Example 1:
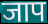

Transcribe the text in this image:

जाप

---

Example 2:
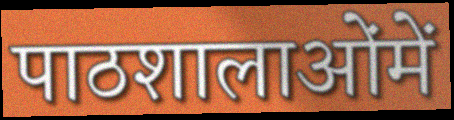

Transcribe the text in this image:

पाठशालाओंमें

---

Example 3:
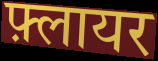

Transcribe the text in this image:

फ़्लायर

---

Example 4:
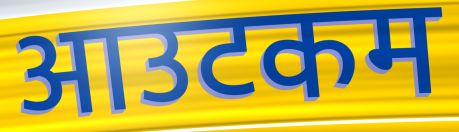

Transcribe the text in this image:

आउटकम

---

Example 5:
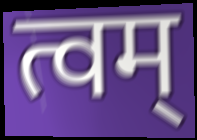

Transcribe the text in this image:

त्वम्